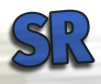
SR